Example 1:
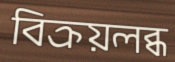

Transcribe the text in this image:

বিক্রয়লব্ধ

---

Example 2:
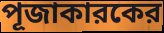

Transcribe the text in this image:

পূজাকারকের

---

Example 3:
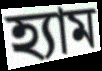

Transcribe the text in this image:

হ্যাম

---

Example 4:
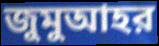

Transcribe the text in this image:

জুমুআহর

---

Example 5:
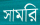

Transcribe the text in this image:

সামরি